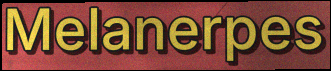
Melanerpes